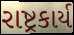
રાષ્ટ્રકાર્ય